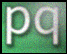
pq